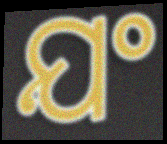
ଯଂ